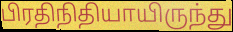
பிரதிநிதியாயிருந்து